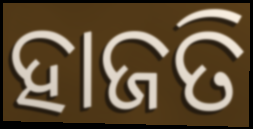
ହାଜତି